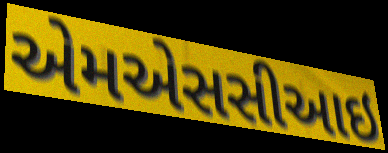
એમએસસીઆઇ